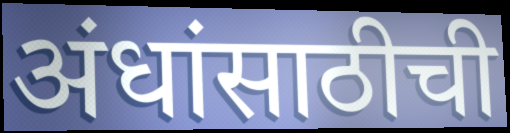
अंधांसाठीची